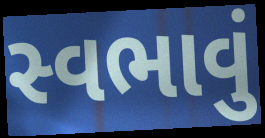
સ્વભાવું